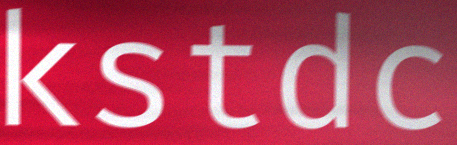
kstdc